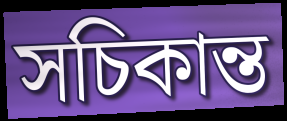
সচিকান্ত